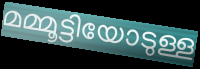
മമ്മൂട്ടിയോടുള്ള